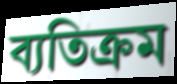
ব্যতিক্রম